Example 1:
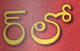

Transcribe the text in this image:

ర్‌లో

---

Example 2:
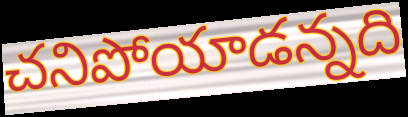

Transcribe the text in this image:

చనిపోయాడన్నది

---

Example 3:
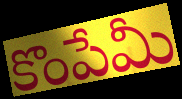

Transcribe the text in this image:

కొంపేమీ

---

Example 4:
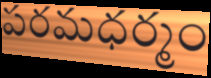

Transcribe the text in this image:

పరమధర్మం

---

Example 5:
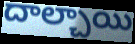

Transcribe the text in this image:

దాల్చాయి